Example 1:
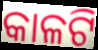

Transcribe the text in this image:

କାଳଟି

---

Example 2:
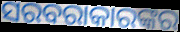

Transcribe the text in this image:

ସରବରାକାରଙ୍କର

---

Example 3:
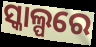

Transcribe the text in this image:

ସ୍କାଲ୍ପରେ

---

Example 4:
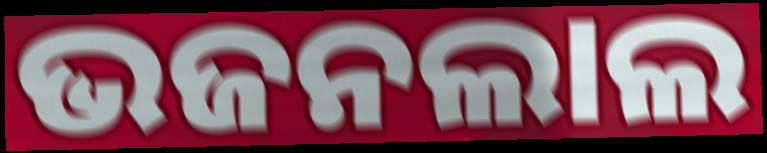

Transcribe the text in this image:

ଭଜନଲାଲ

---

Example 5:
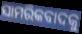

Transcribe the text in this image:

ସାମରିକବାଦକୁ